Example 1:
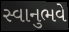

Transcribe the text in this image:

સ્વાનુભવે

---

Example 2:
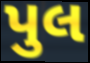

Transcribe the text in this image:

પુલ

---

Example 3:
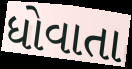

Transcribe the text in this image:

ધોવાતા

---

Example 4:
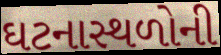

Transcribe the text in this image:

ઘટનાસ્થળોની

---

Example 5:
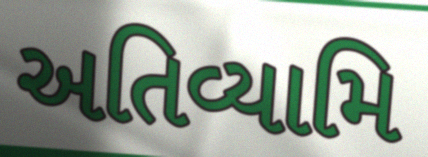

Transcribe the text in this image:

અતિવ્યામિ